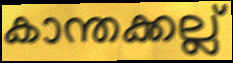
കാന്തക്കല്ല്